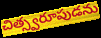
చిత్స్వరూపుడను